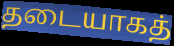
தடையாகத்